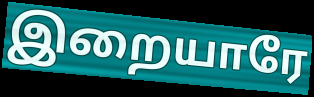
இறையாரே